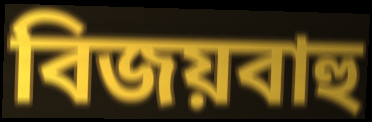
বিজয়বাহু